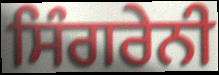
ਸਿੰਗਰੇਨੀ